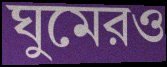
ঘুমেরও